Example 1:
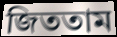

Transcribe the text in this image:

জিততাম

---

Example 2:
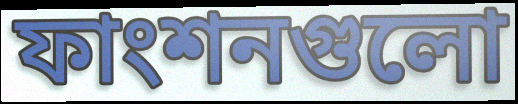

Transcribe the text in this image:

ফাংশনগুলো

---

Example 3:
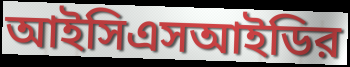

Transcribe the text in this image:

আইসিএসআইডির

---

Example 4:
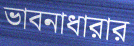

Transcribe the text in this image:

ভাবনাধারার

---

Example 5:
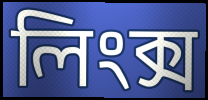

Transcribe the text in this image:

লিংক্স